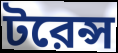
টরেন্স